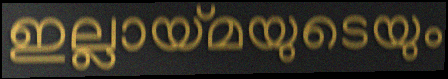
ഇല്ലായ്മയുടെയും